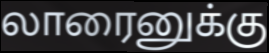
லாரைனுக்கு